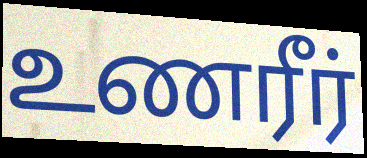
உணரீர்